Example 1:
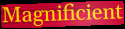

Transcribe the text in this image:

Magnificient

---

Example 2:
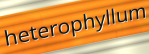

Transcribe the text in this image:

heterophyllum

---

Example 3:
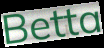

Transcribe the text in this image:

Betta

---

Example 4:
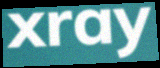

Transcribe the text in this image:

xray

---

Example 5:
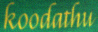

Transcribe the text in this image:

koodathu